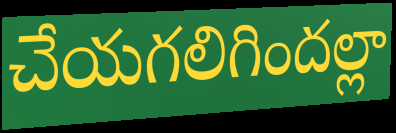
చేయగలిగిందల్లా